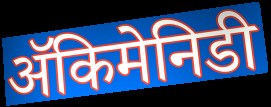
ॲकिमेनिडी